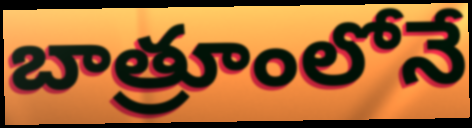
బాత్రూంలోనే